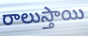
రాలుస్తాయి